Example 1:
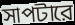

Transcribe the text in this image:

সাপটারে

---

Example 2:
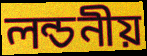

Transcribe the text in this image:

লন্ডনীয়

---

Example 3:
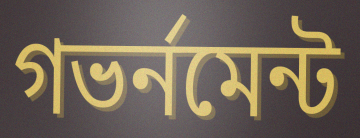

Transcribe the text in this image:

গভর্নমেন্ট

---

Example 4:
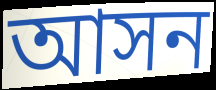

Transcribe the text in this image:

আসন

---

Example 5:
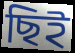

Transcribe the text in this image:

ছিই